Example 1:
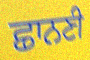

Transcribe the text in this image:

ਛਾਨਣੀ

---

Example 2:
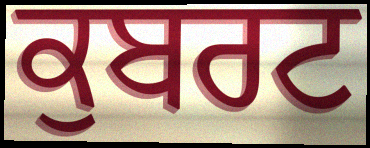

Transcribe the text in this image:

ਕੁਬਰਟ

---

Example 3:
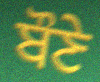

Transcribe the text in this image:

ਬੌਣੇ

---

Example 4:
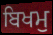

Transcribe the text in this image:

ਬਿਖਮੁ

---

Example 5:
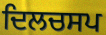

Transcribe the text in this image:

ਦਿਲਚਸਪ